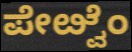
ಪೇೞ್ವೆಂ